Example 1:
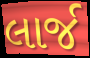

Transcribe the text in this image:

લાર્જ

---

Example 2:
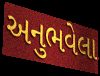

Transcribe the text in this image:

અનુભવેલા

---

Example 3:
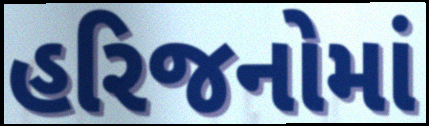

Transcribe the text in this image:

હરિજનોમાં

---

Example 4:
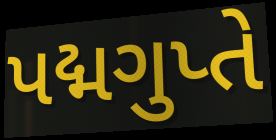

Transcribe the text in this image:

પદ્મગુપ્તે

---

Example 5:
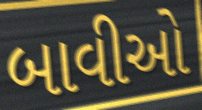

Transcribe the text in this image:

બાવીઓ